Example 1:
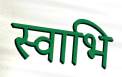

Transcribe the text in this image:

स्वाभि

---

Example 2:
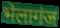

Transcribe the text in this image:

भेलागंज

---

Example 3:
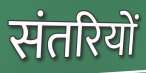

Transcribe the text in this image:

संतरियों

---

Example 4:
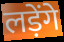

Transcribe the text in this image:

लड़ेंगे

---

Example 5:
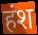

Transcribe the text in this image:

हंश